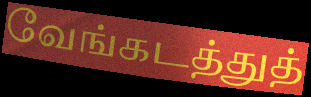
வேங்கடத்துத்